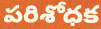
పరిశోధక